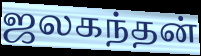
ஜலகந்தன்